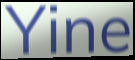
Yine